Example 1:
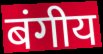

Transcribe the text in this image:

बंगीय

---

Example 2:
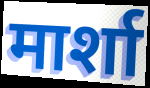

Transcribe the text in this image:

मार्शा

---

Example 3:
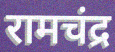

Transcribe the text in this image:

रामचंद्र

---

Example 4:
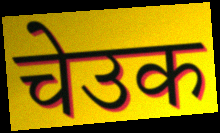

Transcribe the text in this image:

चेउक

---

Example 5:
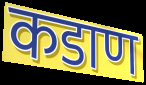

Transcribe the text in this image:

कडाण